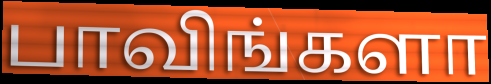
பாவிங்களா